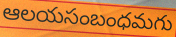
ఆలయసంబంధమగు